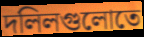
দলিলগুলোতে